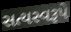
સત્યસ્વરૂપે